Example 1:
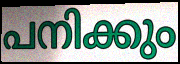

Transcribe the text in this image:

പനിക്കും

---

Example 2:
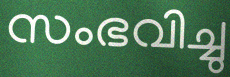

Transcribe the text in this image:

സംഭവിച്ചു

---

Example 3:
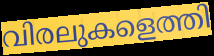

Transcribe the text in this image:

വിരലുകളെത്തി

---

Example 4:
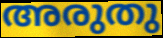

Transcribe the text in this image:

അരുതു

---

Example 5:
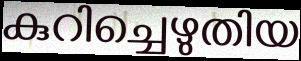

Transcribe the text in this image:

കുറിച്ചെഴുതിയ